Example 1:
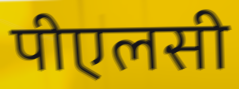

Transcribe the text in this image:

पीएलसी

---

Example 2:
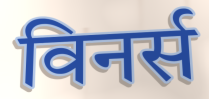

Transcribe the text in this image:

विनर्स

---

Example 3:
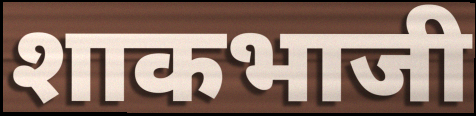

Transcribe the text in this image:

शाकभाजी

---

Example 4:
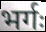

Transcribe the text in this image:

भर्गः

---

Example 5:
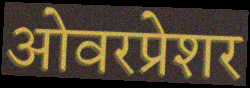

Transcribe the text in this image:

ओवरप्रेशर